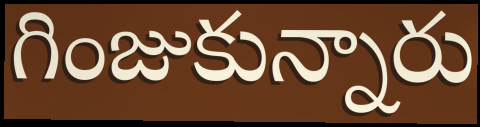
గింజుకున్నారు